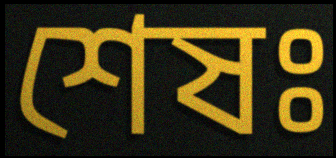
শেষঃ